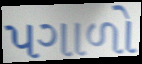
પગાળો